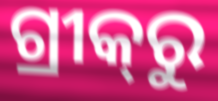
ଗ୍ରୀକ୍‌ରୁ